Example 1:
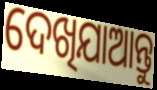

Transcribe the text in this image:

ଦେଖିଯାଆନ୍ତୁ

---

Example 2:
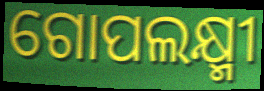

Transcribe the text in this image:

ଗୋପଲକ୍ଷ୍ମୀ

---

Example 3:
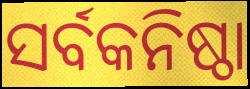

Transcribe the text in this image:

ସର୍ବକନିଷ୍ଠା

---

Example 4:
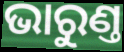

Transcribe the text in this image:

ଭାରୁଣ୍ତ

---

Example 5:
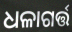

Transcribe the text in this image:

ଧଳାଗର୍ତ୍ତ